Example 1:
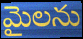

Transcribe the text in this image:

మైలను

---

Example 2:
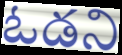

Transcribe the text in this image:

ఓడని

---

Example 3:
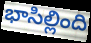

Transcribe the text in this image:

భాసిల్లింది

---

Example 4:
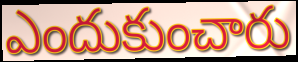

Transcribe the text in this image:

ఎందుకుంచారు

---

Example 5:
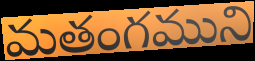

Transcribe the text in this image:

మతంగముని